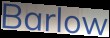
Barlow